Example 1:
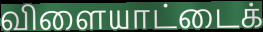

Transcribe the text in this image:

விளையாட்டைக்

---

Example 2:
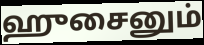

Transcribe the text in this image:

ஹுசைனும்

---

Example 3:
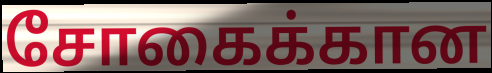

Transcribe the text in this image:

சோகைக்கான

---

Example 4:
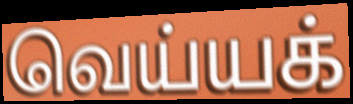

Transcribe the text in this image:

வெய்யக்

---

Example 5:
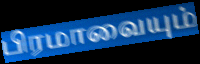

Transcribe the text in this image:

பிரமாவையும்